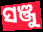
ସଞ୍ଜୁ